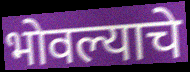
भोवल्याचे